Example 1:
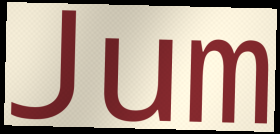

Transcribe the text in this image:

Jum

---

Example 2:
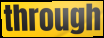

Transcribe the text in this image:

through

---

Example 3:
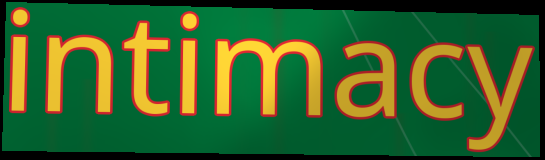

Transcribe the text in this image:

intimacy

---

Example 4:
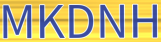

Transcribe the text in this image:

MKDNH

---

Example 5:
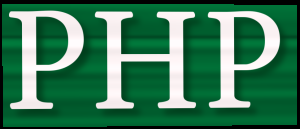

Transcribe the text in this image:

PHP